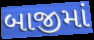
બાજીમાં